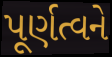
પૂર્ણત્વને